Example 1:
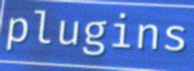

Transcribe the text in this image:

plugins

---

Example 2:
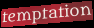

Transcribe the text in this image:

temptation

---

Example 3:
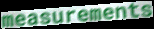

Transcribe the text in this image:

measurements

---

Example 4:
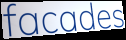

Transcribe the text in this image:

facades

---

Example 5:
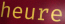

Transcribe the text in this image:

heure